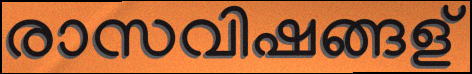
രാസവിഷങ്ങള്